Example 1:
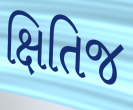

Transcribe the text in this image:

ક્ષિતિજ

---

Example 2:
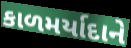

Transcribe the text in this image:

કાળમર્યાદાને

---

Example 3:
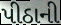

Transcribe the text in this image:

પીઠાની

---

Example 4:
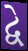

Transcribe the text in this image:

દ્વે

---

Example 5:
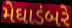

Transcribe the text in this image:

મેઘાડંબરે